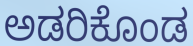
ಅಡರಿಕೊಂಡ